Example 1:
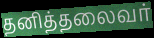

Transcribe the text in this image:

தனித்தலைவர்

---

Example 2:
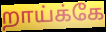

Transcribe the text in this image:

றாய்க்கே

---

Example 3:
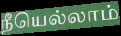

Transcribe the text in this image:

நீயெல்லாம்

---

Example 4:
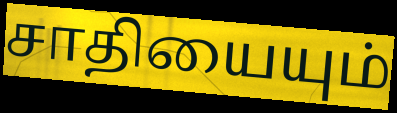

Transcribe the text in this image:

சாதியையும்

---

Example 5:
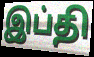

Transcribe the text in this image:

இப்தி